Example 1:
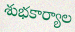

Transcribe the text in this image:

శుభకార్యాల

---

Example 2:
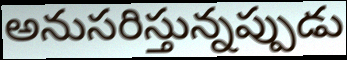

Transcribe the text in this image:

అనుసరిస్తున్నప్పుడు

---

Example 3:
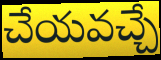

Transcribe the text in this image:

చేయవచ్చే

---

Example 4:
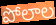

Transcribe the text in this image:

పోలాల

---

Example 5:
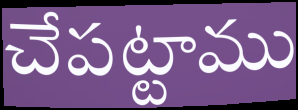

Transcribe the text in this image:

చేపట్టాము